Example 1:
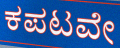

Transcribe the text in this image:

ಕಪಟವೇ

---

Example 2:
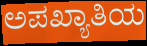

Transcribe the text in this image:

ಅಪಖ್ಯಾತಿಯ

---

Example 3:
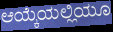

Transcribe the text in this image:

ಆಯ್ಕೆಯಲ್ಲಿಯೂ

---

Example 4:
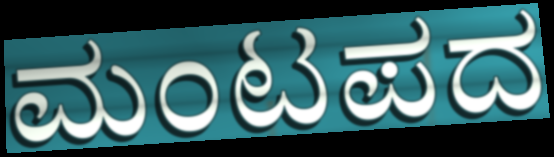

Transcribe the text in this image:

ಮಂಟಪದ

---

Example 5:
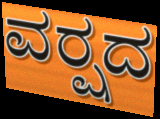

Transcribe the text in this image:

ವರ್‍ಷದ